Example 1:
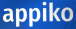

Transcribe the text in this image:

appiko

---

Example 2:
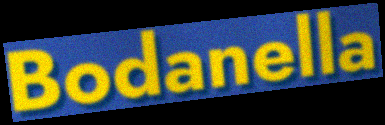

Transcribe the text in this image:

Bodanella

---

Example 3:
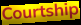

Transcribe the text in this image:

Courtship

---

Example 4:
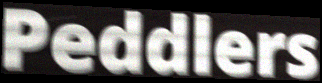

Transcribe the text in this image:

Peddlers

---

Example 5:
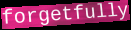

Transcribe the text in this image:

forgetfully